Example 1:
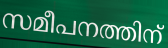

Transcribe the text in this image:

സമീപനത്തിന്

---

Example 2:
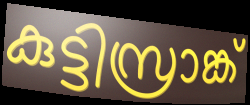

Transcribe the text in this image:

കുട്ടിസ്രാങ്ക്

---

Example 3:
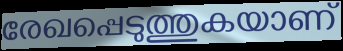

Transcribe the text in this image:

രേഖപ്പെടുത്തുകയാണ്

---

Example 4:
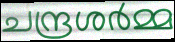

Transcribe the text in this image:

ചന്ദ്രശർമ്മ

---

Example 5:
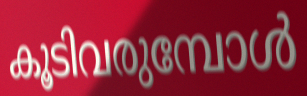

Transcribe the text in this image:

കൂടിവരുമ്പോൾ